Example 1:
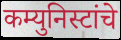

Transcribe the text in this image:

कम्युनिस्टांचे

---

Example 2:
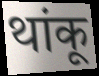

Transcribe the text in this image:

थांकू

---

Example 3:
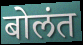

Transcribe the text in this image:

बोलंत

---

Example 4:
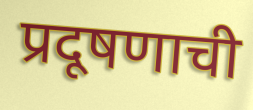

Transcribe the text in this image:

प्रदूषणाची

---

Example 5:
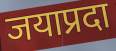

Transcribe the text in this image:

जयाप्रदा